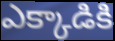
ఎక్కాడికి